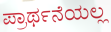
ಪ್ರಾರ್ಥನೆಯಲ್ಲ